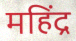
महिंद्र